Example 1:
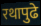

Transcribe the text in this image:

रथापुढे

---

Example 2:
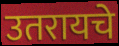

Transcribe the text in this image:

उतरायचे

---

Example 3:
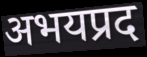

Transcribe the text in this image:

अभयप्रद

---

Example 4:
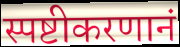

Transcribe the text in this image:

स्पष्टीकरणानं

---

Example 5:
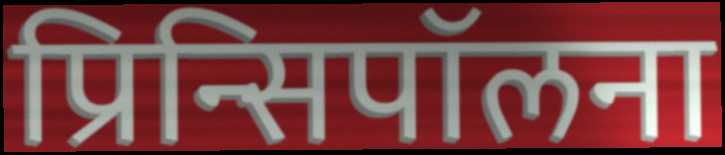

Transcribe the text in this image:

प्रिन्सिपॉलना